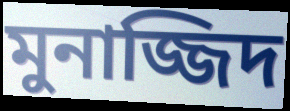
মুনাজ্জিদ